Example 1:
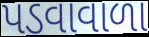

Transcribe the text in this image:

પડવાવાળા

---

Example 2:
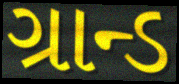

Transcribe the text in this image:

ગ્રાન્ડ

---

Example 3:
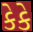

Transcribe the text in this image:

કેકે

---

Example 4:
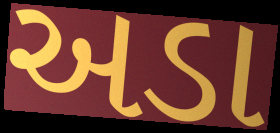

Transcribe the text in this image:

અડા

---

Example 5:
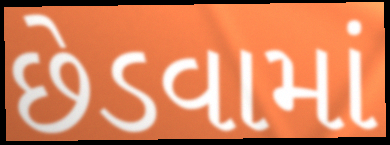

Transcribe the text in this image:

છેડવામાં